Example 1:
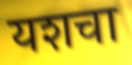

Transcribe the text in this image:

यशचा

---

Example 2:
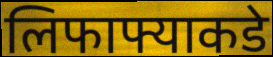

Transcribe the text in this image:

लिफाफ्याकडे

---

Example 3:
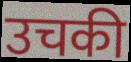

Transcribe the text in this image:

उचकी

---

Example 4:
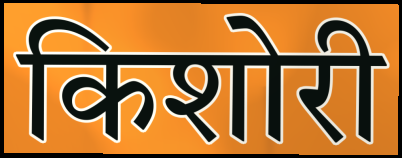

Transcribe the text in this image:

किशोरी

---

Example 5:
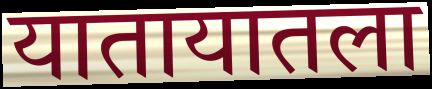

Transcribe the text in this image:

यातायातला